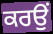
ਕਰਉਂ